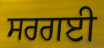
ਸਰਗਈ